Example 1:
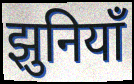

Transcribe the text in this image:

झुनियाँ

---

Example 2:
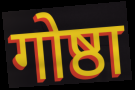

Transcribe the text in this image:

गोष्ठा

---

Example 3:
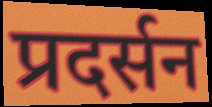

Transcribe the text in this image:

प्रदर्सन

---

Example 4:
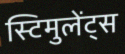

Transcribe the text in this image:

स्टिमुलेंट्स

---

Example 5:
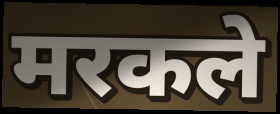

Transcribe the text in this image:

मरकले